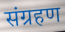
संग्रहण